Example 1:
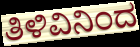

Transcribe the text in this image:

ತಿಳಿವಿನಿಂದ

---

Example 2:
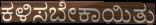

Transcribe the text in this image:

ಕಳಿಸಬೇಕಾಯಿತು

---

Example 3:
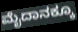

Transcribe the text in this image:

ಮೈದಾನಕ್ಕೂ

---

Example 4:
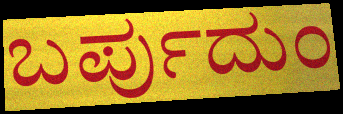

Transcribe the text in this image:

ಬರ್ಪುದುಂ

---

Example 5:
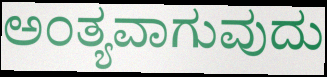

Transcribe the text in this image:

ಅಂತ್ಯವಾಗುವುದು